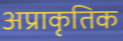
अप्राकृतिक